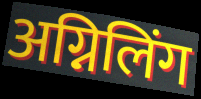
अग्निलिंग